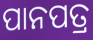
ପାନପତ୍ର